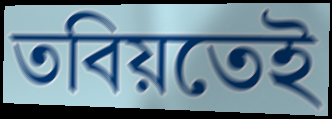
তবিয়তেই